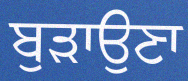
ਬੁੜਾਉਣਾ